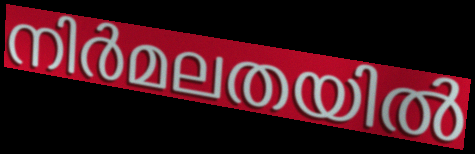
നിർമലതയിൽ